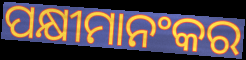
ପକ୍ଷୀମାନଂକର